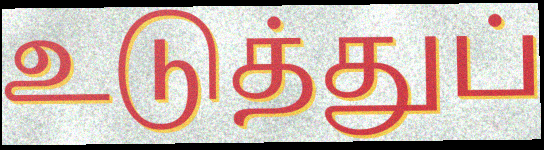
உடுத்துப்